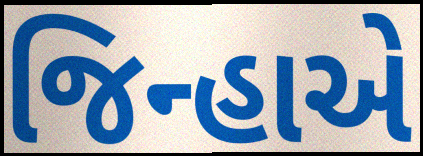
જિન્હાએ